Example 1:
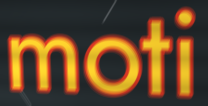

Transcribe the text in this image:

moti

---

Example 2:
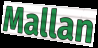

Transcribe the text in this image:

Mallan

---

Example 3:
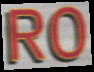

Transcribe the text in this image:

RO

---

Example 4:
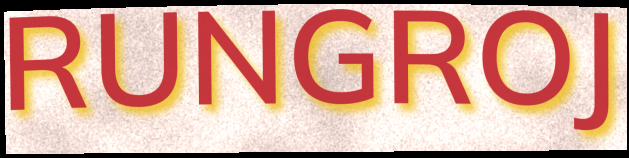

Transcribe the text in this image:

RUNGROJ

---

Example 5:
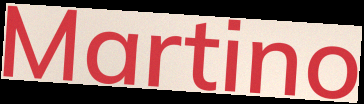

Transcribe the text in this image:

Martino